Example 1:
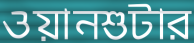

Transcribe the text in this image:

ওয়ানশুটার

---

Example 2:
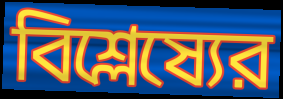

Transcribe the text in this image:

বিশ্লেষ্যের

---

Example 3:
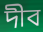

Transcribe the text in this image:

দীব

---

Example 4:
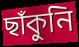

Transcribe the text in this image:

ছাঁকুনি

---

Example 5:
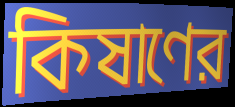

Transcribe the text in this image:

কিষাণের